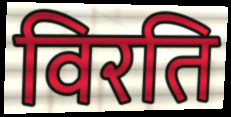
विरति